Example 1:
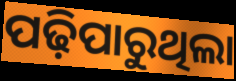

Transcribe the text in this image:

ପଢ଼ିପାରୁଥିଲା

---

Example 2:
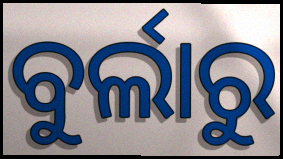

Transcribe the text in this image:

ବୁର୍ଲାରୁ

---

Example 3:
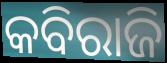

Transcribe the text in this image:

କବିରାଜି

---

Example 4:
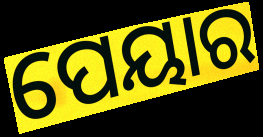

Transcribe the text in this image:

ପେୟାର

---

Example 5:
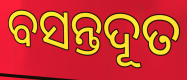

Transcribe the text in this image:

ବସନ୍ତଦୂତ